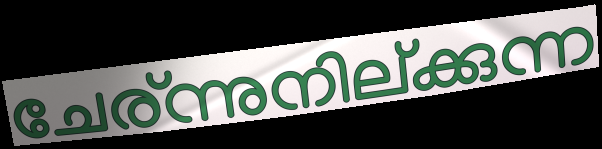
ചേര്ന്നുനില്ക്കുന്ന